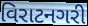
વિરાટનગરી